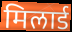
मिलार्ड